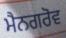
ਮੈਨਗਰੋਵ